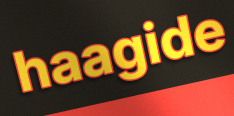
haagide